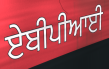
ਏਬੀਪੀਆਈ